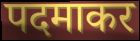
पदमाकर